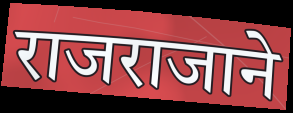
राजराजाने